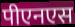
पीएनएस